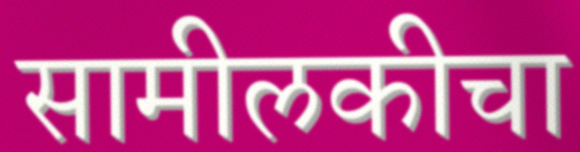
सामीलकीचा